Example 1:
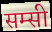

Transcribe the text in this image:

सम्सी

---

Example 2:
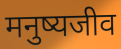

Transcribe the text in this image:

मनुष्यजीव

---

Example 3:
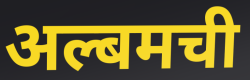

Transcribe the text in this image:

अल्बमची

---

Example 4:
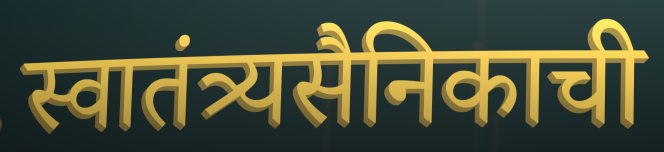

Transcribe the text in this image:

स्वातंत्र्यसैनिकाची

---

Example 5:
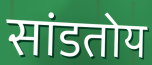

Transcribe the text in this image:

सांडतोय